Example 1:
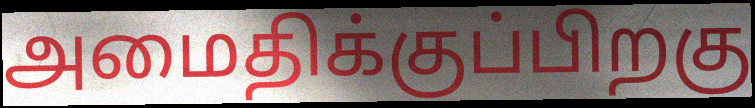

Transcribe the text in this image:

அமைதிக்குப்பிறகு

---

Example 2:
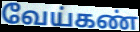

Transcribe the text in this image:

வேய்கண்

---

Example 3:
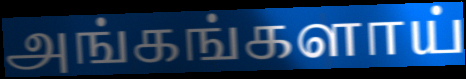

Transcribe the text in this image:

அங்கங்களாய்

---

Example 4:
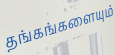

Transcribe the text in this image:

தங்கங்களையும்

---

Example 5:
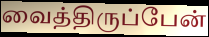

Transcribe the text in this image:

வைத்திருப்பேன்